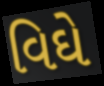
વિઘે